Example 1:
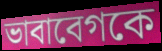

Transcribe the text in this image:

ভাবাবেগকে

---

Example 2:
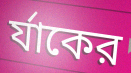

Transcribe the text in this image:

র্যাকের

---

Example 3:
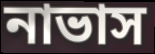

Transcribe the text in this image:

নাভাস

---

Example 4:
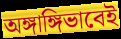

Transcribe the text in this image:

অঙ্গাঙ্গিভাবেই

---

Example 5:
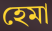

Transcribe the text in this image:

হেমা